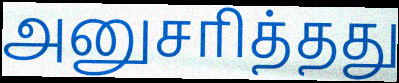
அனுசரித்தது